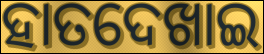
ହାତଦେଖାଇ